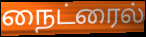
நைட்ரைல்